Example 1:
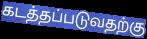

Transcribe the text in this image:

கடத்தப்படுவதற்கு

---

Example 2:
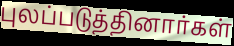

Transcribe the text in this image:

புலப்படுத்தினார்கள்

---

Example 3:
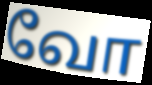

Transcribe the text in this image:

வோ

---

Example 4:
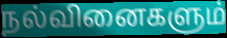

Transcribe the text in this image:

நல்வினைகளும்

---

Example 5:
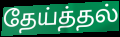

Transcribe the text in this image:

தேய்த்தல்